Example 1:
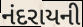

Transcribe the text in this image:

નંદરાયની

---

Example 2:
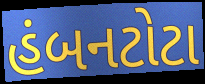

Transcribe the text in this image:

હંબનટોટા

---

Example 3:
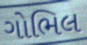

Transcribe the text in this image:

ગોભિલ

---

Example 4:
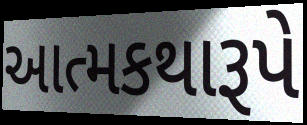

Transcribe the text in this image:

આત્મકથારૂપે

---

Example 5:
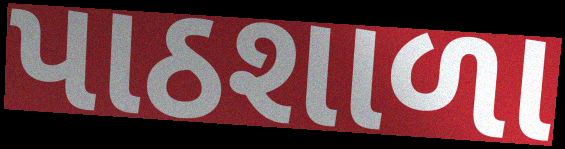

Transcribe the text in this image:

પાઠશાળા